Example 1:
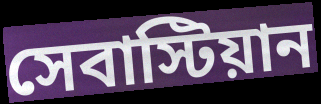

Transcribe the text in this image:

সেবাস্টিয়ান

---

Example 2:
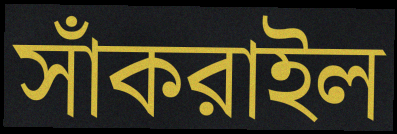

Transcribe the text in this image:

সাঁকরাইল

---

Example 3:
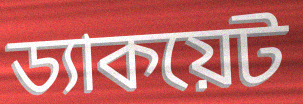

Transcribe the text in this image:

ড্যাকয়েট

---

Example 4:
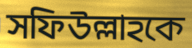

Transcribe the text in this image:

সফিউল্লাহকে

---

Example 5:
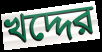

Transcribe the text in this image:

খদ্দের